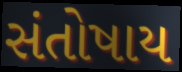
સંતોષાય